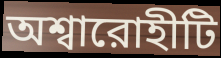
অশ্বারোহীটি